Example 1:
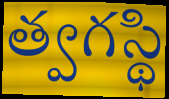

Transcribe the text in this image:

త్వగస్థి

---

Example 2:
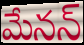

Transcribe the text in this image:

మేనన్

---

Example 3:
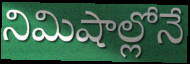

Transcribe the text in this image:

నిమిషాల్లోనే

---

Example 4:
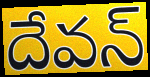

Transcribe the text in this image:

దేవన్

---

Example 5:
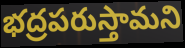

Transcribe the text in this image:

భద్రపరుస్తామని